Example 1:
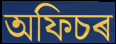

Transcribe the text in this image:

অফিচৰ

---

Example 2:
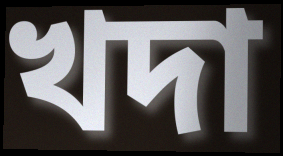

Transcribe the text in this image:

খদা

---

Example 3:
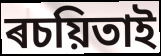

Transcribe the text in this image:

ৰচয়িতাই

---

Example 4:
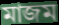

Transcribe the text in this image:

মাজম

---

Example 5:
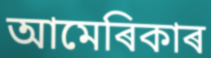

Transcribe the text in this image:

আমেৰিকাৰ